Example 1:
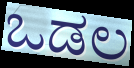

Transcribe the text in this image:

ಒಡಲ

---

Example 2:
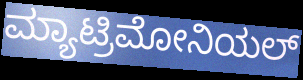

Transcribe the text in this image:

ಮ್ಯಾಟ್ರಿಮೋನಿಯಲ್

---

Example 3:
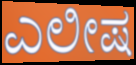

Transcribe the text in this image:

ಎಲೀಷ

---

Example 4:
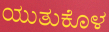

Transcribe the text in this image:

ಯುತುಕೊಳ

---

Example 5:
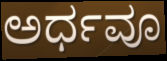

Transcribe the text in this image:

ಅರ್ಧವೂ